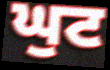
ਘੁਟ